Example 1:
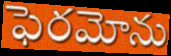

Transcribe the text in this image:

ఫెరమోను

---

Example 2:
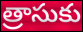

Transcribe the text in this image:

త్రాసుకు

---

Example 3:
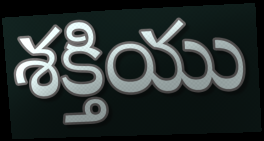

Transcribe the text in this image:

శక్తియు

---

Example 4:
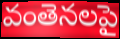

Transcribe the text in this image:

వంతెనలపై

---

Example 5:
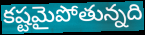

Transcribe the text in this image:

కష్టమైపోతున్నది